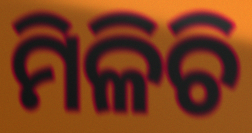
ମିଳିଚି